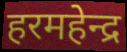
हरमहेन्द्र